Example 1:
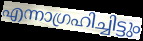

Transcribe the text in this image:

എന്നാഗ്രഹിച്ചിട്ടും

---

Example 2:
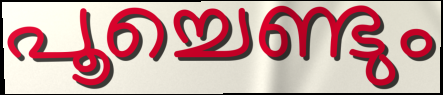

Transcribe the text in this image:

പൂച്ചെണ്ടും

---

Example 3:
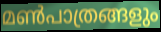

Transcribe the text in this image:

മൺപാത്രങ്ങളും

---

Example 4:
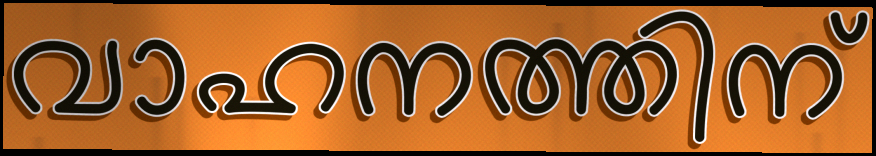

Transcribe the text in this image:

വാഹനത്തിന്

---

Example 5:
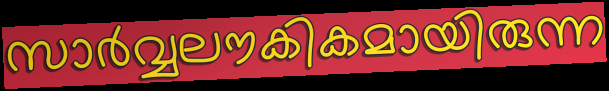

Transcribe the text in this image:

സാർവ്വലൗകികമായിരുന്ന